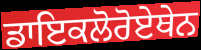
ਡਾਇਕਲੋਰੋਏਥੇਨ